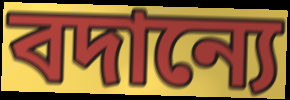
বদান্যে